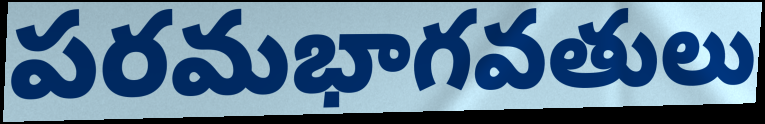
పరమభాగవతులు